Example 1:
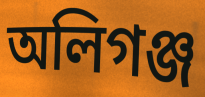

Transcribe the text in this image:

অলিগঞ্জ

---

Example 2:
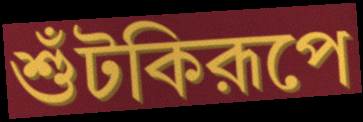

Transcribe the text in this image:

শুঁটকিরূপে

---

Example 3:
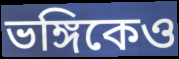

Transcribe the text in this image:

ভঙ্গিকেও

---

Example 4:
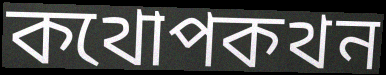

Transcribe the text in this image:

কথোপকথন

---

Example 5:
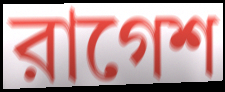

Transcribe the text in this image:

রাগেশ